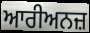
ਆਰੀਅਨਜ਼